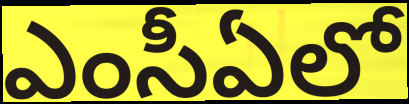
ఎంసీఏలో